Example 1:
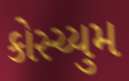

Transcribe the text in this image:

કોસ્ચ્યુમ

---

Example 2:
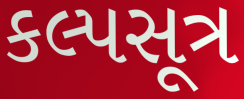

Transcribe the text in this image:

કલ્પસૂત્ર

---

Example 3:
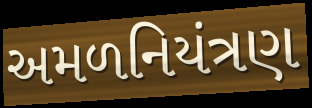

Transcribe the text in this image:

અમળનિયંત્રણ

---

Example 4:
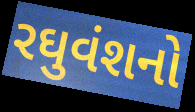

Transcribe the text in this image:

રઘુવંશનો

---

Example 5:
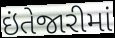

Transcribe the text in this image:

ઇંતેજારીમાં